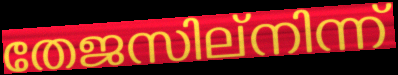
തേജസില്നിന്ന്